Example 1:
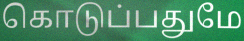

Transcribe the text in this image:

கொடுப்பதுமே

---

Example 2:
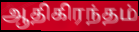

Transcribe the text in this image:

ஆதிகிரந்தம்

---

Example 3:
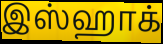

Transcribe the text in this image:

இஸ்ஹாக்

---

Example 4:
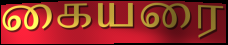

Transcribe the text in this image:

கையரை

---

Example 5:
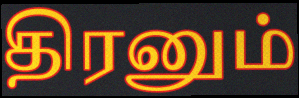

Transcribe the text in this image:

திரனும்